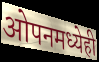
ओपनमध्येही